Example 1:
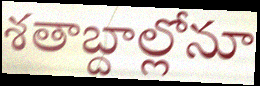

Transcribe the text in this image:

శతాబ్దాల్లోనూ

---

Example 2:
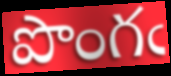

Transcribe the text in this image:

పొంగఁ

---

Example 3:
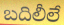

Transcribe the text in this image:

బదిలీలే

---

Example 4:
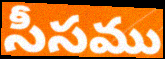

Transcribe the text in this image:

సీసము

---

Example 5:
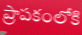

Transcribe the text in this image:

ప్రాపకంలోకి